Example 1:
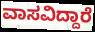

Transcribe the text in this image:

ವಾಸವಿದ್ದಾರೆ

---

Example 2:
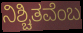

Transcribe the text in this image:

ನಿಶ್ಚಿತವೆಂಬ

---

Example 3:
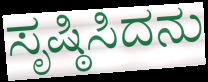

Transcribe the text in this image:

ಸೃಷ್ಠಿಸಿದನು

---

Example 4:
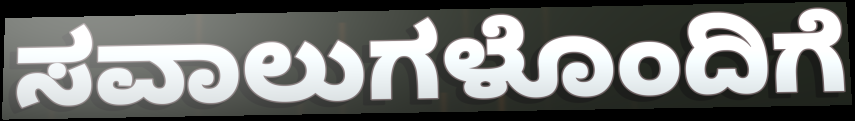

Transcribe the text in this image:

ಸವಾಲುಗಳೊಂದಿಗೆ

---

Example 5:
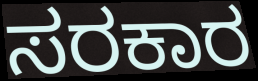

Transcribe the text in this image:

ಸರಕಾರ